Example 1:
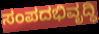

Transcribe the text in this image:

ಸಂಪದಭಿವೃದ್ಧಿ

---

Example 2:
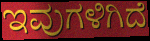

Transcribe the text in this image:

ಇವುಗಳಿಗಿದೆ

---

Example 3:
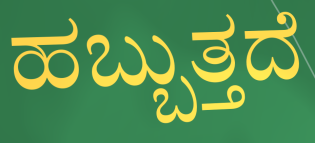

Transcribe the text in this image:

ಹಬ್ಬುತ್ತದೆ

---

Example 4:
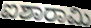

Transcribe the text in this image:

ಐಶಾರಾಮಿ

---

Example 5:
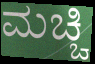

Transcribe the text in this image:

ಮಚ್ಚಿ